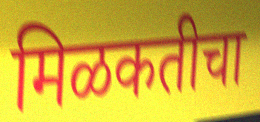
मिळकतीचा